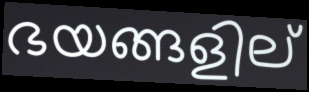
ഭയങ്ങളില്